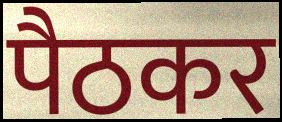
पैठकर